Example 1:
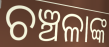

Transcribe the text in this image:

ଚଞ୍ଚଳାଙ୍କ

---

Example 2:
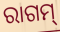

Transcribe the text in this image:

ରାଗମ୍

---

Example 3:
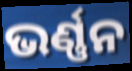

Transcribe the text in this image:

ଭର୍ଣ୍ଣନ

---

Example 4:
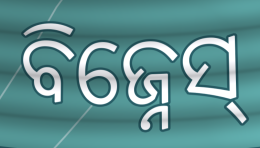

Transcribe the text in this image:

ବିଜ୍ନେସ୍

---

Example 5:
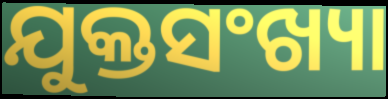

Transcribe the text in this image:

ଯୁକ୍ତସଂଖ୍ୟା